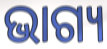
ଭାଗ୍ୟ